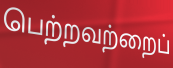
பெற்றவற்றைப்